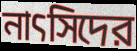
নাৎসিদের